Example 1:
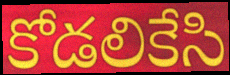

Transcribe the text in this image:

కోడలికేసి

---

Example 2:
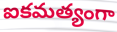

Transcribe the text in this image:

ఐకమత్యంగా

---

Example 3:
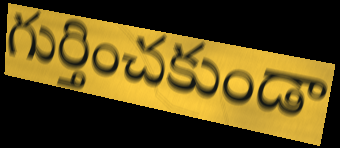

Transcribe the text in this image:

గుర్తించకుండా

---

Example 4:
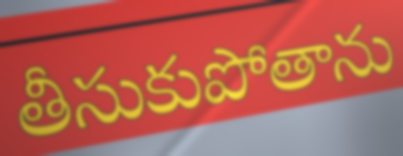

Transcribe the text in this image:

తీసుకుపోతాను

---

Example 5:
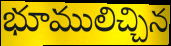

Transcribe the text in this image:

భూములిచ్చిన